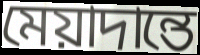
মেয়াদান্তে